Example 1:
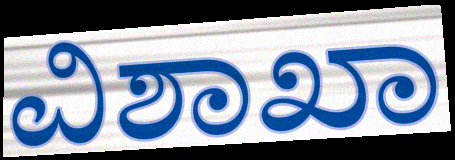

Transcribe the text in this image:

ವಿಶಾಖಾ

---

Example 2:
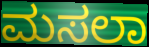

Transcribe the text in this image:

ಮಸಲಾ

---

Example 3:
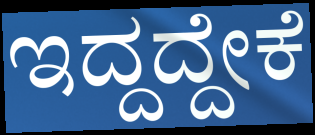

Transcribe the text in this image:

ಇದ್ದದ್ದೇಕೆ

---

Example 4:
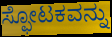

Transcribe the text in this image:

ಸ್ಫೋಟಕವನ್ನು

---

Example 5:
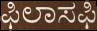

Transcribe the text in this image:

ಫಿಲಾಸಫಿ